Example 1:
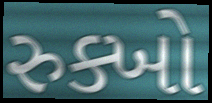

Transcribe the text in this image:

રુક્ખો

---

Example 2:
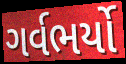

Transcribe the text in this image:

ગર્વભર્યો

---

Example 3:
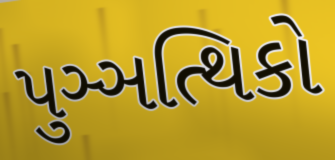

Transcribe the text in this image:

પુઞ્ઞત્થિકો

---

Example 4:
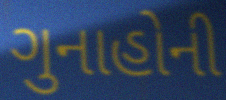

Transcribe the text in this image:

ગુનાહોની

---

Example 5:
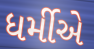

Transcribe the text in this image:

ધર્મીએ